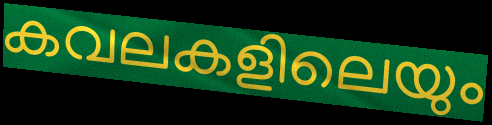
കവലകളിലെയും